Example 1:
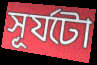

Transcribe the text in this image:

সূৰ্যটো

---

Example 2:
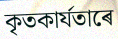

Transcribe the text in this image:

কৃতকাৰ্যতাৰে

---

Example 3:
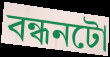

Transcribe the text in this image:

বন্ধনটো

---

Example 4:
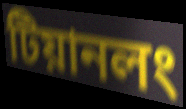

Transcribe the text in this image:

টিয়ানলং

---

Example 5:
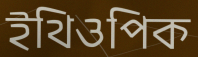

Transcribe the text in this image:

ইথিওপিক